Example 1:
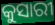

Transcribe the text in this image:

କୁସାରୀ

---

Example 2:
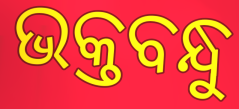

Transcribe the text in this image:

ଭକ୍ତବନ୍ଧୁ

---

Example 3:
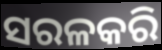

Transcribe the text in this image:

ସରଳକରି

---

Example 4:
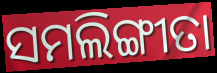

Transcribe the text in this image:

ସମଲିଙ୍ଗୀତା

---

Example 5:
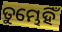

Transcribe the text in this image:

ତୁମ୍ଭେହିଁ